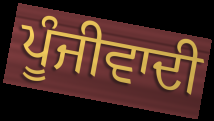
ਪੂੰਜੀਵਾਦੀ